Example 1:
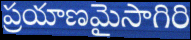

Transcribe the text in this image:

ప్రయాణమైసాగిరి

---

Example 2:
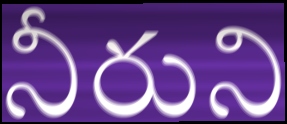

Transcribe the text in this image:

నీరుని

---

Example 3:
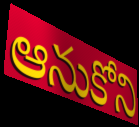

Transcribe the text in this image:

ఆనుకోని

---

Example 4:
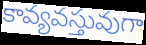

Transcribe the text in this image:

కావ్యవస్తువుగా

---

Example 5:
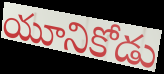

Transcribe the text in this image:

యూనికోడు